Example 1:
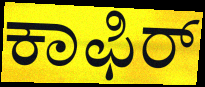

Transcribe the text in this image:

ಕಾಫಿರ್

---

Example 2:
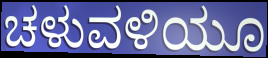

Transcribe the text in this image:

ಚಳುವಳಿಯೂ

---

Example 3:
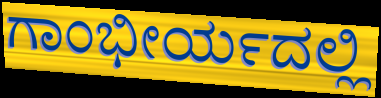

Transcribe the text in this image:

ಗಾಂಭೀರ್ಯದಲ್ಲಿ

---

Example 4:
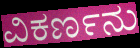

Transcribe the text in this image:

ವಿಕರ್ಣನು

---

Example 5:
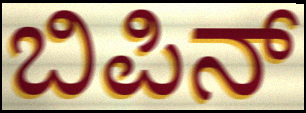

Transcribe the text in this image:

ಬಿಪಿನ್